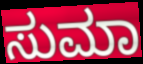
ಸುಮಾ